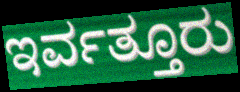
ಇರ್ವತ್ತೂರು